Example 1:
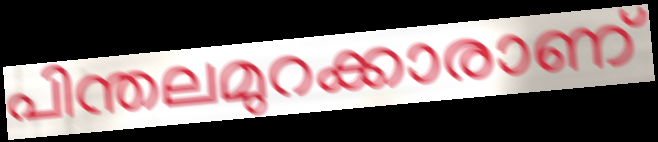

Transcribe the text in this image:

പിന്തലമുറക്കാരാണ്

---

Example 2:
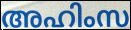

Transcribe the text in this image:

അഹിംസ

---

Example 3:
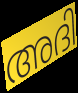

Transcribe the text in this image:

അദി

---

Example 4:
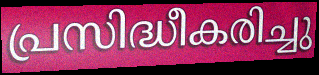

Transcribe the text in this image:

പ്രസിദ്ധീകരിച്ചു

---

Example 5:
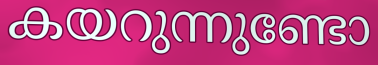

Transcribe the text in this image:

കയറുന്നുണ്ടോ